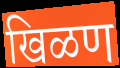
खिळण